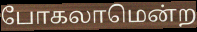
போகலாமென்ற